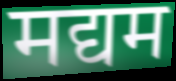
मद्यम